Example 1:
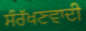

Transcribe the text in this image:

ਸੰਰੱਖਣਵਾਦੀ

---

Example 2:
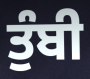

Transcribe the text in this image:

ਤੁੰਬੀ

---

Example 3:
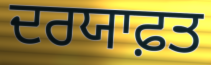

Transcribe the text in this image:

ਦਰਯਾਫ਼ਤ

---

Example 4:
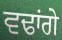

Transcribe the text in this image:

ਵਢਾਂਗੇ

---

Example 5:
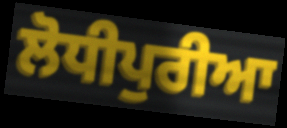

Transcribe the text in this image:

ਲੋਧੀਪੁਰੀਆ